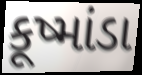
કૂષ્માંડા